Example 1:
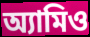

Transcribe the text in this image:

অ্যামিও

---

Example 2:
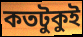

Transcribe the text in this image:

কতটুকুই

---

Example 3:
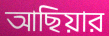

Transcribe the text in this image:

আছিয়ার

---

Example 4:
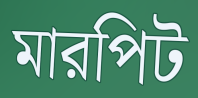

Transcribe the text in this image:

মারপিট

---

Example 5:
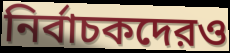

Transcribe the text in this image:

নির্বাচকদেরও